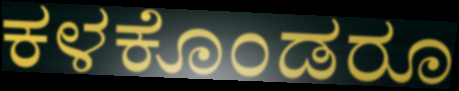
ಕಳಕೊಂಡರೂ